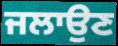
ਜਲਾਉਣ